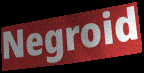
Negroid